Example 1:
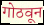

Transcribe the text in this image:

गोठवून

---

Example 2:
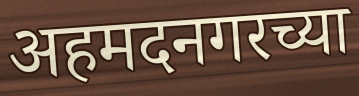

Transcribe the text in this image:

अहमदनगरच्या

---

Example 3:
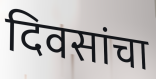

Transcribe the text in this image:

दिवसांचा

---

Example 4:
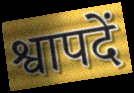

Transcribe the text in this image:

श्वापदें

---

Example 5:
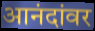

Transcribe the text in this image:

आनंदांवर